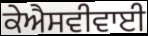
ਕੇਐਸਵੀਵਾਈ